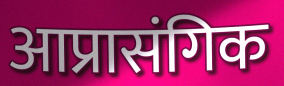
आप्रासंगिक